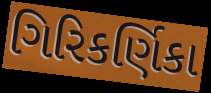
ગિરિકર્ણિકા